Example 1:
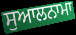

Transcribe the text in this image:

ਸੁਆਲਨਾਮਾ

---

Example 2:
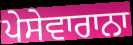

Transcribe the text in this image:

ਪੇਸੇਵਾਰਾਨਾ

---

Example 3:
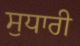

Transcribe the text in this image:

ਸੁਧਾਰੀ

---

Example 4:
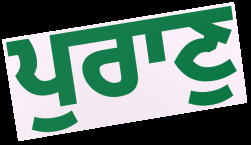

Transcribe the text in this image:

ਪੁਰਾਣੁ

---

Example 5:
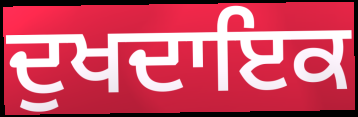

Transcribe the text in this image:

ਦੁਖਦਾਇਕ